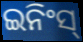
ଇନିଂସ୍